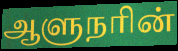
ஆளுநரின்